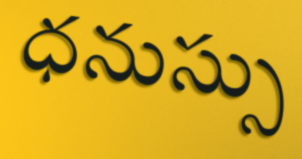
ధనుస్సు